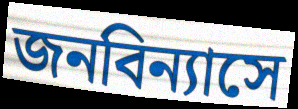
জনবিন্যাসে